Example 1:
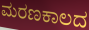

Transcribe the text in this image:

ಮರಣಕಾಲದ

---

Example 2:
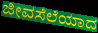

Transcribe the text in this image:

ಜೀವಸೆಲೆಯಾದ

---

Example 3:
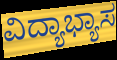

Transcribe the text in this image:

ವಿದ್ಯಾಭ್ಯಾಸ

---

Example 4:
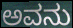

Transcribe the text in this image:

ಅವನು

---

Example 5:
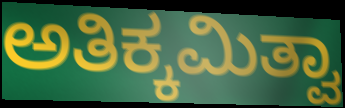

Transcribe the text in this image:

ಅತಿಕ್ಕಮಿತ್ವಾ